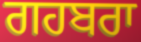
ਗਹਬਰਾ